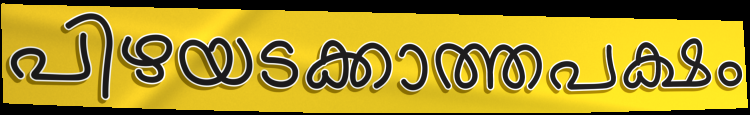
പിഴയടക്കാത്തപക്ഷം